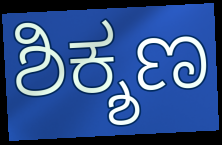
ಶಿಕ್ಶಣ